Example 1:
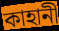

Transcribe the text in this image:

কাহানী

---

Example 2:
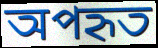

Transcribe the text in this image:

অপহৃত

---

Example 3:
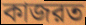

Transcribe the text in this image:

কাজরত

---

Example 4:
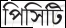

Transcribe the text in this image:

পিসিটি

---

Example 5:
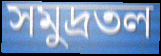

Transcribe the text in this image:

সমুদ্রতল